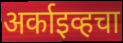
अर्काइव्हचा